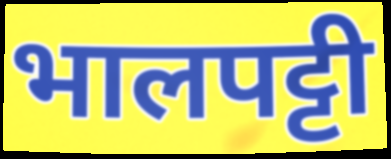
भालपट्टी